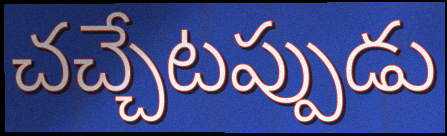
చచ్చేటప్పుడు